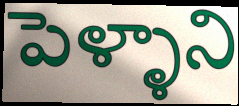
పెళ్ళాని